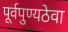
पूर्वपुण्यठेवा